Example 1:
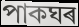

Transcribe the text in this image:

পাকঘৰ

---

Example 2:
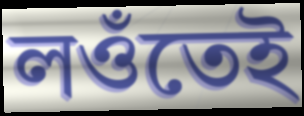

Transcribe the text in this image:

লওঁতেই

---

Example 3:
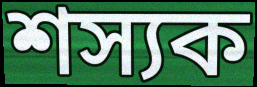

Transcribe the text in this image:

শস্যক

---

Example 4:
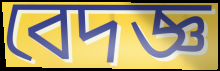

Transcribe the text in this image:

বেদজ্ঞ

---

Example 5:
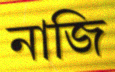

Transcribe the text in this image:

নাজি